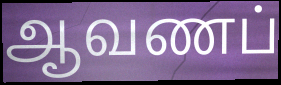
ஆவணப்